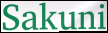
Sakuni